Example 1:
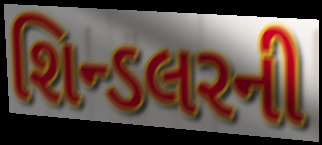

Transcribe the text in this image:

શિન્ડલરની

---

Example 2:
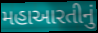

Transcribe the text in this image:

મહાઆરતીનું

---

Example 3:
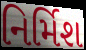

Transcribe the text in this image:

નિર્મિશ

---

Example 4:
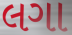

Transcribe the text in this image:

લગા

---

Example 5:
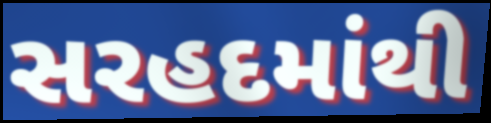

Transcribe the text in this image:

સરહદમાંથી